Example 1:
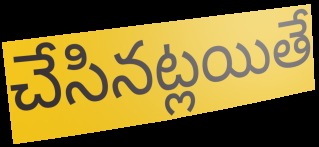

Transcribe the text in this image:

చేసినట్లయితే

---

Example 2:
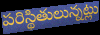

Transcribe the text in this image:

పరిస్థితులున్నట్లు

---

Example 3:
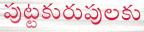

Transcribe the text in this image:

పుట్టకురుపులకు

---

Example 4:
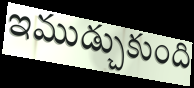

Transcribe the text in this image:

ఇముడ్చుకుంది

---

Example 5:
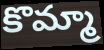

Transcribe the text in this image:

కొమ్మా